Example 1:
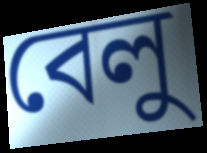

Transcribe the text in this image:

বেলু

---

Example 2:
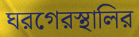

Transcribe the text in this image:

ঘরগেরস্থালির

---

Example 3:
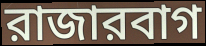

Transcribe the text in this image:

রাজারবাগ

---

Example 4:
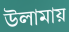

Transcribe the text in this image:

উলামায়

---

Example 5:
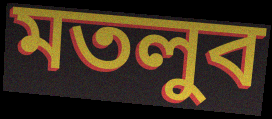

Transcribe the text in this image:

মতলুব